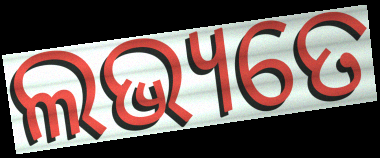
ଲଭ୍ୟତେ